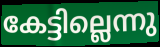
കേട്ടില്ലെന്നു